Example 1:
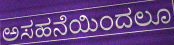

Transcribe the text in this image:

ಅಸಹನೆಯಿಂದಲೂ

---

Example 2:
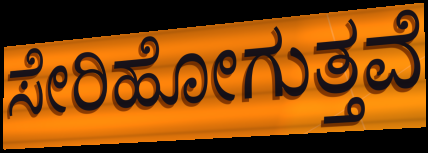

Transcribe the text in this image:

ಸೇರಿಹೋಗುತ್ತವೆ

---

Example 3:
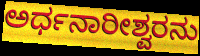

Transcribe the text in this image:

ಅರ್ಧನಾರೀಶ್ವರನು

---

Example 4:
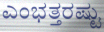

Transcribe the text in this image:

ಎಂಭತ್ತರಷ್ಟು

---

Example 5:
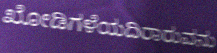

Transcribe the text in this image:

ಖೋಡಿಗಳೆಯದಿರಾರುವನು